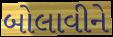
બોલાવીને